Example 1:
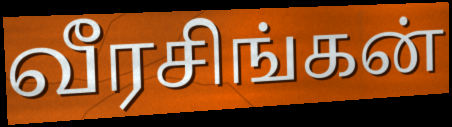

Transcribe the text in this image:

வீரசிங்கன்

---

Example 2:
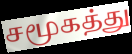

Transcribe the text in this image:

சமூகத்து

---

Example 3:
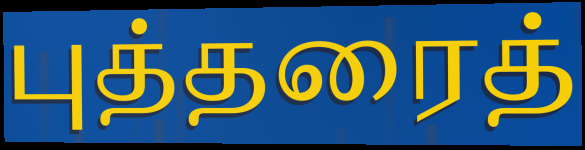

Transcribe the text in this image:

புத்தரைத்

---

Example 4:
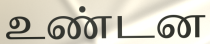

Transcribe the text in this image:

உண்டன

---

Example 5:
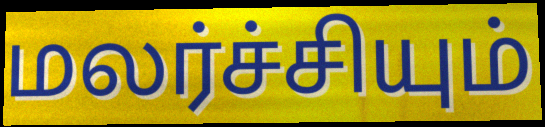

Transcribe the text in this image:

மலர்ச்சியும்